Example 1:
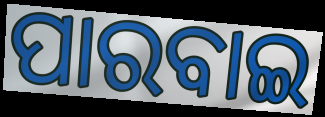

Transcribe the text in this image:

ପାରବାଇ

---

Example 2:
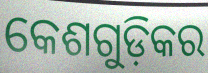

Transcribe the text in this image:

କେଶଗୁଡ଼ିକର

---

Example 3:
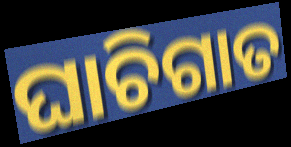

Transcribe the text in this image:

ଘାଚିଗାତ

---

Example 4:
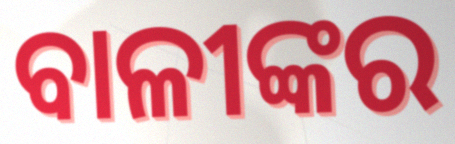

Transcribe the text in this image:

ବାଳୀଙ୍କର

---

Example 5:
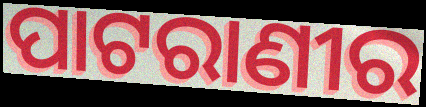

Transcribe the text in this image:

ପାଟରାଣୀର